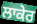
ਲਾਕੇਰ